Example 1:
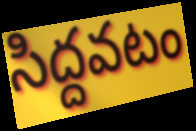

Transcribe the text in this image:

సిద్దవటం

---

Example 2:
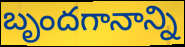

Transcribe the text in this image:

బృందగానాన్ని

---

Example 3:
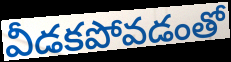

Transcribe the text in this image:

వీడకపోవడంతో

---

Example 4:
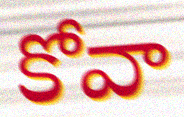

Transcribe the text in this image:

కోవా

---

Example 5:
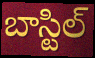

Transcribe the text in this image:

బాస్టిల్